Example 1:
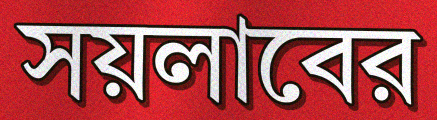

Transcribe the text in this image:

সয়লাবের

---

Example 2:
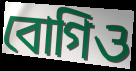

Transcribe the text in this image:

বোগিও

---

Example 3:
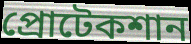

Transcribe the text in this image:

প্রোটেকশান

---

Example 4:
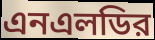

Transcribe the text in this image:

এনএলডির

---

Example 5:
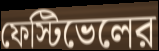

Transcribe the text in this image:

ফেস্টিভেলের